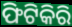
ଫିଟିକିରି